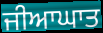
ਜੀਆਘਾਤ